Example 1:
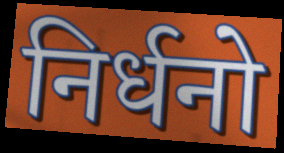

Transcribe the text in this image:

निर्धनो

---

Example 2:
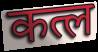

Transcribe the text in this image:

कत्ल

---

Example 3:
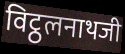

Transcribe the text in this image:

विट्ठलनाथजी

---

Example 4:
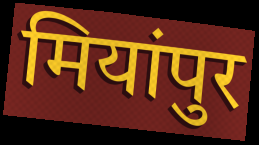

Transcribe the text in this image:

मियांपुर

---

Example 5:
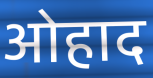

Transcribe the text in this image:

ओहाद